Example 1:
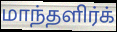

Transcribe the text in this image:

மாந்தளிர்க்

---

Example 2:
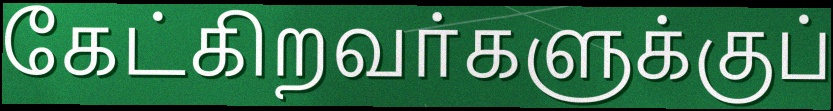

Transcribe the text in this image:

கேட்கிறவர்களுக்குப்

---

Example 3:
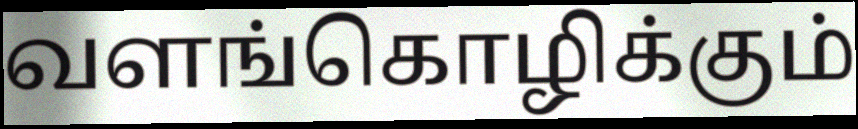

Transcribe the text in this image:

வளங்கொழிக்கும்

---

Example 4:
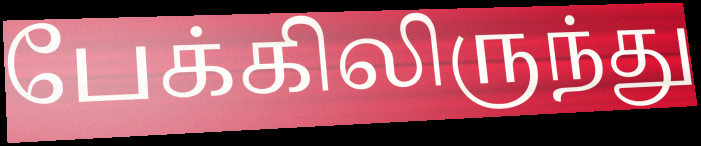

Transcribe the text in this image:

பேக்கிலிருந்து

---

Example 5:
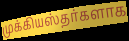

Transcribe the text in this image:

முக்கியஸ்தர்களாக